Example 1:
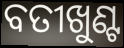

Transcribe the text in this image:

ବତୀଖୁଣ୍ଟ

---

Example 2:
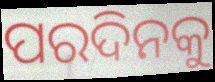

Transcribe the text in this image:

ପରଦିନକୁ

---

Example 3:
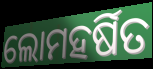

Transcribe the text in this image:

ଲୋମହର୍ଷିତ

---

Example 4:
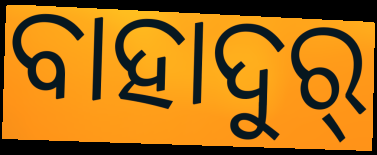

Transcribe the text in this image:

ବାହାଦୁର୍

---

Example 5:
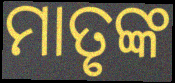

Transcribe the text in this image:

ମାତୃଙ୍କ